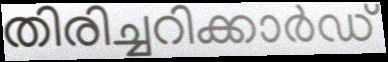
തിരിച്ചറിക്കാർഡ്